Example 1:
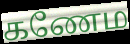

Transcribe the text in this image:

கணேம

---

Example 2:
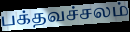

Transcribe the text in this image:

பக்தவச்சலம்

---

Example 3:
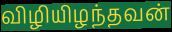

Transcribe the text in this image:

விழியிழந்தவன்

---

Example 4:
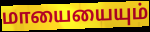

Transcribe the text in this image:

மாயையையும்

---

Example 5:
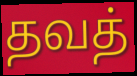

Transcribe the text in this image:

தவத்